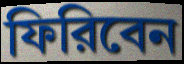
ফিরিবেন